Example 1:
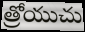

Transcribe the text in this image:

త్రోయుచు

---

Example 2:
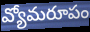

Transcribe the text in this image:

వ్యోమరూపం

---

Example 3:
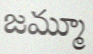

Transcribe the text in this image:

జమ్మూ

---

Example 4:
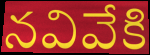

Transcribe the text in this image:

నవివేకి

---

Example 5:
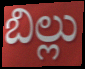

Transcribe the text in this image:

బిల్లు